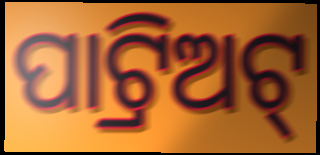
ପାଟ୍ରିଅଟ୍